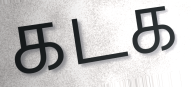
கடக